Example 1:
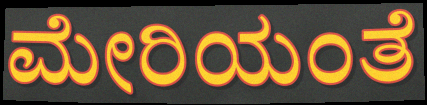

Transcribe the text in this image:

ಮೇರಿಯಂತೆ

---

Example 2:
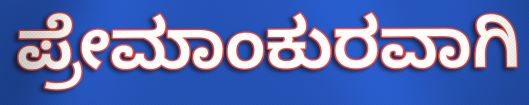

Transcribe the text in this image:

ಪ್ರೇಮಾಂಕುರವಾಗಿ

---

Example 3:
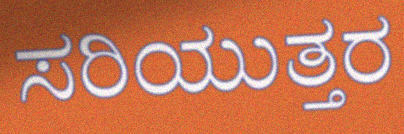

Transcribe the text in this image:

ಸರಿಯುತ್ತರ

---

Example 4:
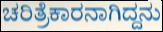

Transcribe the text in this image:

ಚರಿತ್ರೆಕಾರನಾಗಿದ್ದನು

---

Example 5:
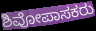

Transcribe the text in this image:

ಶಿವೋಪಾಸಕರು